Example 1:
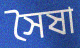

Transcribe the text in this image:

সৈষা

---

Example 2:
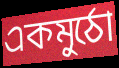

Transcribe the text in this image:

একমুঠো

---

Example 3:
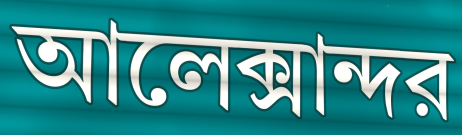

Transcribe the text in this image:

আলেক্সান্দর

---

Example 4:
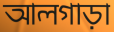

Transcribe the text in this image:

আলগাড়া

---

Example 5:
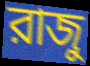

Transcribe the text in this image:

রাজু